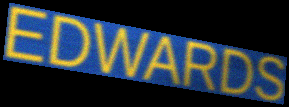
EDWARDS